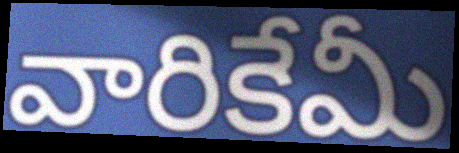
వారికేమీ